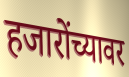
हजारोंच्यावर